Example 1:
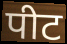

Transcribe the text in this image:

पीट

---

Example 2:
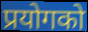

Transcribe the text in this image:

प्रयोगको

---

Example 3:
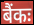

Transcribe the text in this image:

बैंकः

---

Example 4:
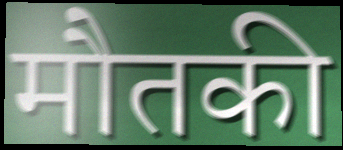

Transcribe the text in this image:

मौतकी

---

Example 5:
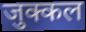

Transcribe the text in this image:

जुक्कल